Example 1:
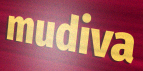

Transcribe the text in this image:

mudiva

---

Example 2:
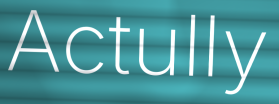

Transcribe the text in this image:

Actully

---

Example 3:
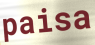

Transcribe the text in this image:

paisa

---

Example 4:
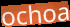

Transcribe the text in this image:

ochoa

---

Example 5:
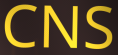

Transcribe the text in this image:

CNS